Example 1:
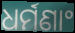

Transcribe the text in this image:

ଧର୍ମଣାଂ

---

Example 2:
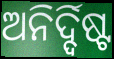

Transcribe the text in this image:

ଅନିର୍ଦ୍ଦିଷ୍ଟ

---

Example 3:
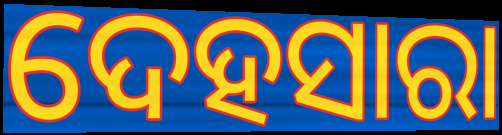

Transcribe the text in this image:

ଦେହସାରା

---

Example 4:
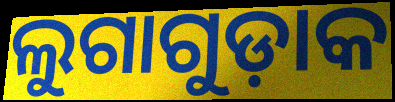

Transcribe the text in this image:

ଲୁଗାଗୁଡ଼ାକ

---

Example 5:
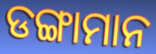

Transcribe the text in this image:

ଡଙ୍ଗାମାନ